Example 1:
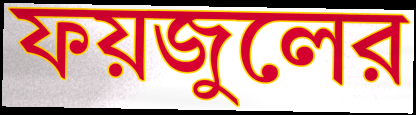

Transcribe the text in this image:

ফয়জুলের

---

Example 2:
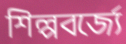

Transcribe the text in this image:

শিল্পবর্জ্যে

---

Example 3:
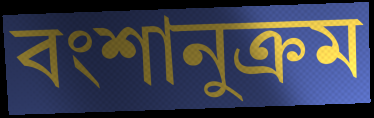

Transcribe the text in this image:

বংশানুক্রম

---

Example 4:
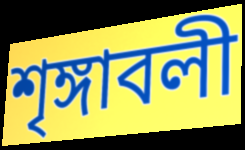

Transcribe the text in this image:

শৃঙ্গাবলী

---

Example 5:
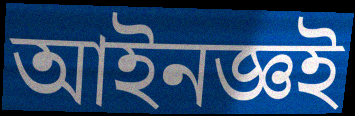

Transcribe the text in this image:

আইনজ্ঞই